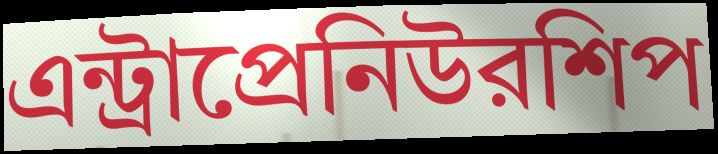
এন্ট্রাপ্রেনিউরশিপ